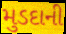
મુડદાની